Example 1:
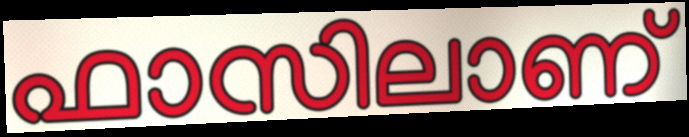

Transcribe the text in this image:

ഫാസിലാണ്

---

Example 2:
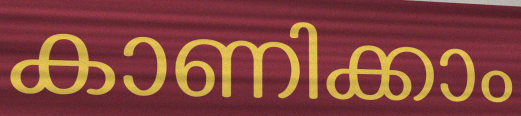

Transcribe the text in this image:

കാണിക്കാം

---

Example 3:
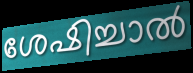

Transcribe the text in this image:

ശേഷിച്ചാൽ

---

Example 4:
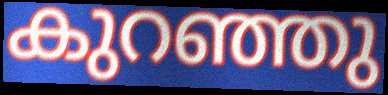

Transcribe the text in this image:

കുറഞ്ഞു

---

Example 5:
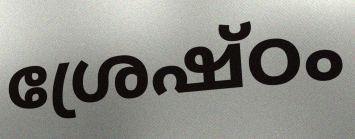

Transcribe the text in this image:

ശ്രേഷ്ഠം